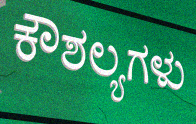
ಕೌಶಲ್ಯಗಳು